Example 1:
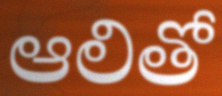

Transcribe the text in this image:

ఆలితో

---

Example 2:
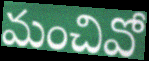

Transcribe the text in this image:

మంచివో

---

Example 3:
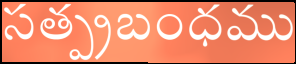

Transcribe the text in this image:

సత్ప్రబంధము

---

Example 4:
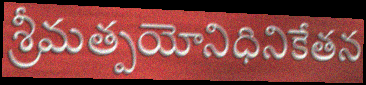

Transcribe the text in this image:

శ్రీమత్పయోనిధినికేతన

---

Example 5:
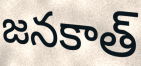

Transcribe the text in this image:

జనకాత్